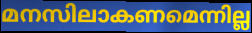
മനസിലാകണമെന്നില്ല